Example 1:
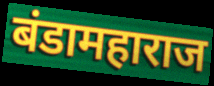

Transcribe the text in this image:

बंडामहाराज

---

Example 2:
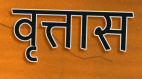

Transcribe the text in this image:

वृत्तास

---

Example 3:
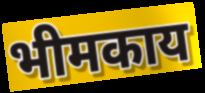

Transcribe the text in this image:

भीमकाय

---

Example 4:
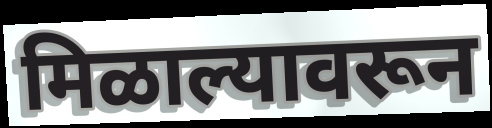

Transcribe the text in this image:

मिळाल्यावरून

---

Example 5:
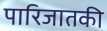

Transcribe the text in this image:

पारिजातकी